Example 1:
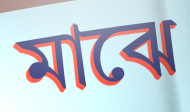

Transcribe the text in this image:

মাঝে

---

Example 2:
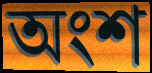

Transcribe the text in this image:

অংশ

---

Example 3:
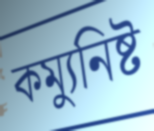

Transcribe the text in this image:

কম্যুনিষ্ট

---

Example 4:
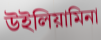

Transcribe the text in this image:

উইলিয়ামিনা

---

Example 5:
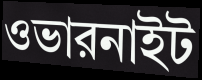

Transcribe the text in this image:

ওভারনাইট